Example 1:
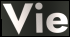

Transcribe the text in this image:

Vie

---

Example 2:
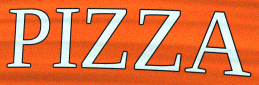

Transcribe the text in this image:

PIZZA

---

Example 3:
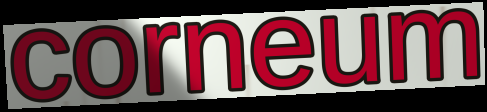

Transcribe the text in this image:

corneum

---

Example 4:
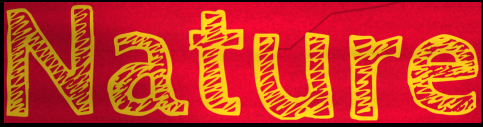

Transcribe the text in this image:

Nature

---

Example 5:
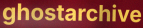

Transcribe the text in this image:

ghostarchive